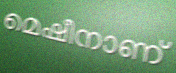
മെഷീനാണ്